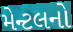
મેન્ટલનો